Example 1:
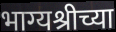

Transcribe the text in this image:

भाग्यश्रीच्या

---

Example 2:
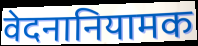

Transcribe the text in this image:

वेदनानियामक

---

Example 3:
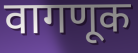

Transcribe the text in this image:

वागणूक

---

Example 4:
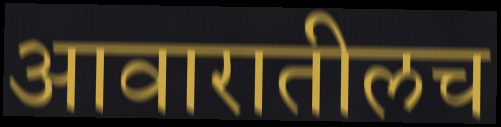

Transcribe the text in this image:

आवारातीलच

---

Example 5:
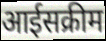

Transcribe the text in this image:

आईसक्रीम